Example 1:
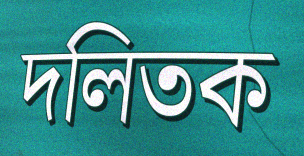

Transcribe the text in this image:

দলিতক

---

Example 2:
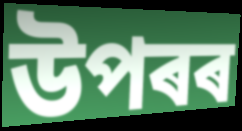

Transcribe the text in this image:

উপৰৰ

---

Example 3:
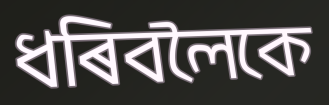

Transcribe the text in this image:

ধৰিবলৈকে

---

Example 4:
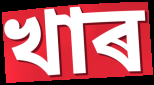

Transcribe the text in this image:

খাৰ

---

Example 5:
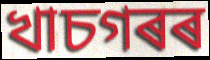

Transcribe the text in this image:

খাচগৰৰ